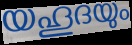
യഹൂദയും